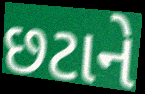
છટાને